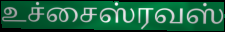
உச்சைஸ்ரவஸ்